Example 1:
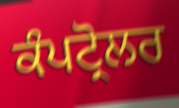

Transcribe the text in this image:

ਕੰਪਟ੍ਰੋਲਰ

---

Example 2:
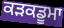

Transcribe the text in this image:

ਕੜਕਡੂਮਾ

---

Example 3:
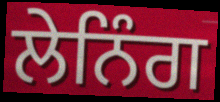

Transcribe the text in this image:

ਲੇਨਿੰਗ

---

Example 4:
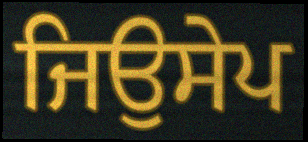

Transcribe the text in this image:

ਜਿਉਸੇਪ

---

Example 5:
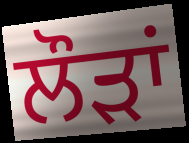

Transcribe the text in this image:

ਲੌੜਾਂ